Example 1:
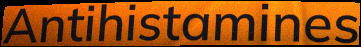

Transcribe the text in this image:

Antihistamines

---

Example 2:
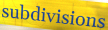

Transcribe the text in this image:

subdivisions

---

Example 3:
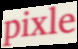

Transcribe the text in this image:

pixle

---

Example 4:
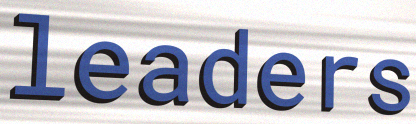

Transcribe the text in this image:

leaders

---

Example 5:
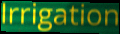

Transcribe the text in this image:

Irrigation